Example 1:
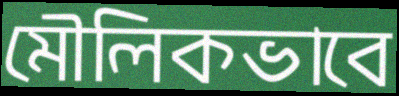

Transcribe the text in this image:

মৌলিকভাবে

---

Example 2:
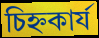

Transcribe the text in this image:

চিহ্নকার্য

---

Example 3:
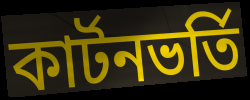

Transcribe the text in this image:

কার্টনভর্তি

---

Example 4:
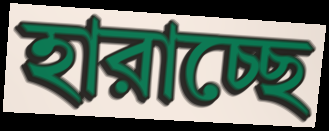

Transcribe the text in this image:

হারাচ্ছে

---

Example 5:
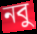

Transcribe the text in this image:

নবু